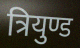
त्रियुण्ड